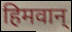
हिमवान्